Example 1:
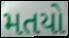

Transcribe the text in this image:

મતયો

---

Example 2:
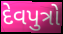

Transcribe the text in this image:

દેવપુત્રો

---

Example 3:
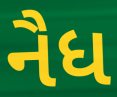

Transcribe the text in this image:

નૈધ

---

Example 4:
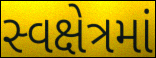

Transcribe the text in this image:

સ્વક્ષેત્રમાં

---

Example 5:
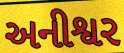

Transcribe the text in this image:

અનીશ્વર